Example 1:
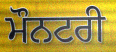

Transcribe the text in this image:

ਮੌਨਟਰੀ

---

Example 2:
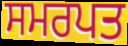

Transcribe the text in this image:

ਸਮਰਪਤ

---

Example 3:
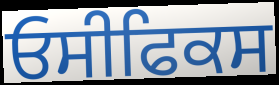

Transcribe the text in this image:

ਓਸੀਫਿਕਸ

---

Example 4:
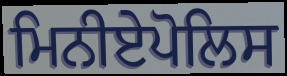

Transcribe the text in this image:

ਮਿਨੀਏਪੋਲਿਸ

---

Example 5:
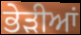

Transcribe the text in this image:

ਭੇੜੀਆਂ